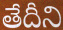
తేదీని